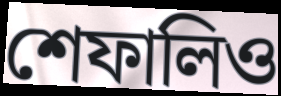
শেফালিও